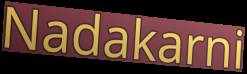
Nadakarni